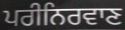
ਪਰੀਨਿਰਵਾਣ